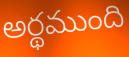
అర్థముంది